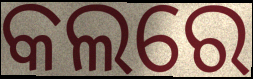
କଲରେ